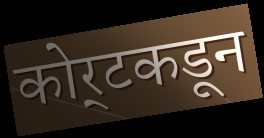
कोर्टकडून